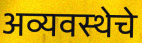
अव्यवस्थेचे